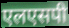
एलएसपी